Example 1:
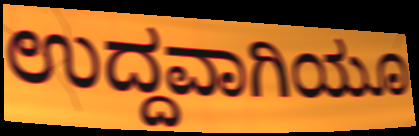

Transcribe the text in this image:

ಉದ್ದವಾಗಿಯೂ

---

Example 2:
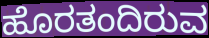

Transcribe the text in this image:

ಹೊರತಂದಿರುವ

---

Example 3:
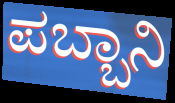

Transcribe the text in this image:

ಪಬ್ಬಾನಿ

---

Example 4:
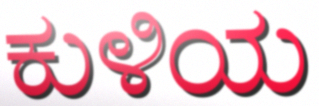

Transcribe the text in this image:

ಕುಳಿಯ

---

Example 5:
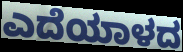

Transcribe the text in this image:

ಎದೆಯಾಳದ